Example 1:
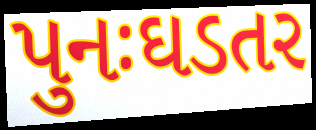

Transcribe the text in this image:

પુનઃઘડતર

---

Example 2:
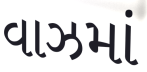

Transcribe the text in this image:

વાઝમાં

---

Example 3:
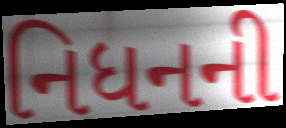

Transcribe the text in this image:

નિધનની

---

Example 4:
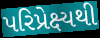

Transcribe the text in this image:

પરિપ્રેક્ષ્યથી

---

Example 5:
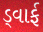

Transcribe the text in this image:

ડ્વાર્ફ